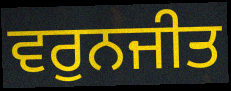
ਵਰੁਨਜੀਤ